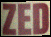
ZED